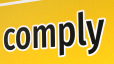
comply